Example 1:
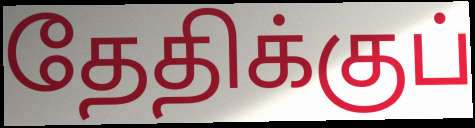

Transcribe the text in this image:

தேதிக்குப்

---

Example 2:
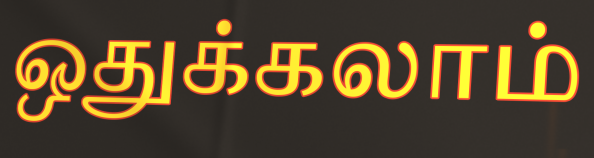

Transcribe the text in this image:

ஒதுக்கலாம்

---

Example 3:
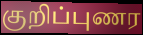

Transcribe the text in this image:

குறிப்புணர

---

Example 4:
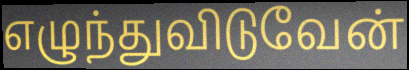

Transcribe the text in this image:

எழுந்துவிடுவேன்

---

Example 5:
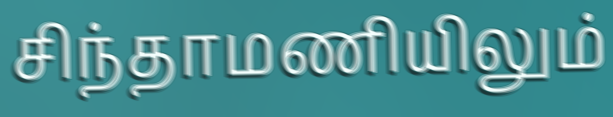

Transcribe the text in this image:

சிந்தாமணியிலும்